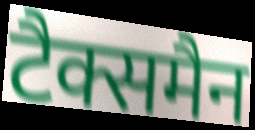
टैक्समैन